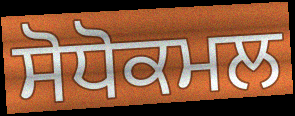
ਸੋਧੋਕਮਲ